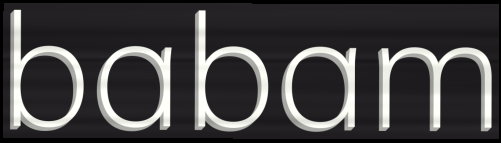
babam